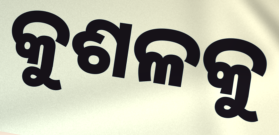
କୁଶଳକୁ